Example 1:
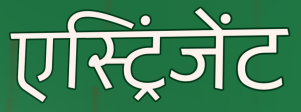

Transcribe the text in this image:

एस्ट्रिंजेंट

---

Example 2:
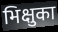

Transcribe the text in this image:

भिक्षुका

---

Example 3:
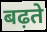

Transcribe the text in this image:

बढ़ते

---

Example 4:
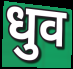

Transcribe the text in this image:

धुव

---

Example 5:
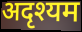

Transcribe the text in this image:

अदृश्यम